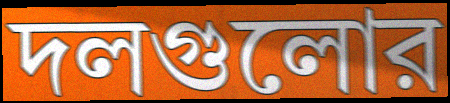
দলগুলোর